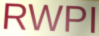
RWPI